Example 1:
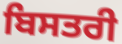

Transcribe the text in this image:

ਬਿਸਤਰੀ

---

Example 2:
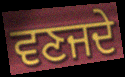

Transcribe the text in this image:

ਵਣਜਦੇ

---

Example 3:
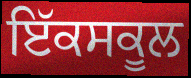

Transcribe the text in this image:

ਇੱਕਸਕੂਲ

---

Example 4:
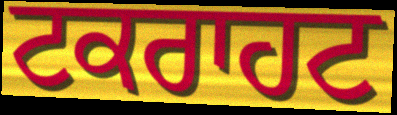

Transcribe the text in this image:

ਟਕਰਾਹਟ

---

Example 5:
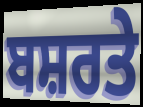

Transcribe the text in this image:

ਬਸ਼ਰਤੇ